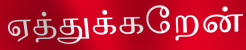
ஏத்துக்கறேன்